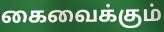
கைவைக்கும்